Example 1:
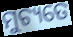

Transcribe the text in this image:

ମୁଚ୍ୟତେ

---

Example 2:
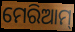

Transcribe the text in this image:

ମେରିଆମ୍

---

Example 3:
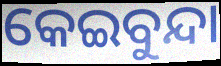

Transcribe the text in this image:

କେଇବୁନ୍ଦା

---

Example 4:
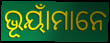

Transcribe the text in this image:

ଭୂୟାଁମାନେ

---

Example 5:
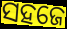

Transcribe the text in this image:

ସହଜେ